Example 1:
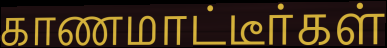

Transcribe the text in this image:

காணமாட்டீர்கள்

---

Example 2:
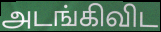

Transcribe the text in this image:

அடங்கிவிட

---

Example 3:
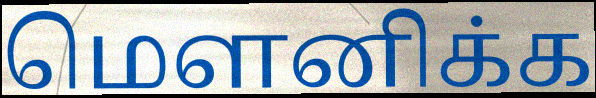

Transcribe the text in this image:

மெளனிக்க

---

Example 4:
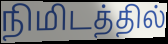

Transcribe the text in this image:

நிமிடத்தில்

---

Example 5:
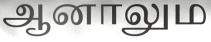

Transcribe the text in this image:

ஆனாலும